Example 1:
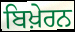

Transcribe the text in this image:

ਬਿਖ਼ੇਰਨ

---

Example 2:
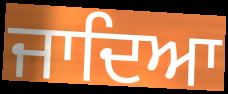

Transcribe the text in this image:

ਜਾਦਿਆ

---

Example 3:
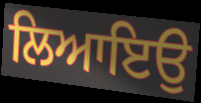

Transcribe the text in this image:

ਲਿਆਇਉ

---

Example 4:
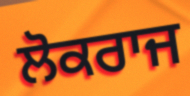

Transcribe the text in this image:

ਲੋਕਰਾਜ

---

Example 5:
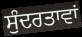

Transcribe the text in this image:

ਸੁੰਦਰਤਾਵਾਂ